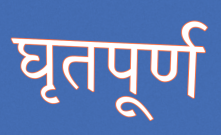
घृतपूर्ण